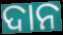
ଦାନ